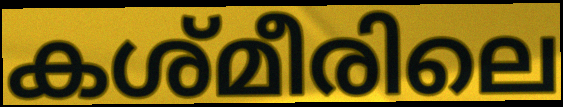
കശ്മീരിലെ